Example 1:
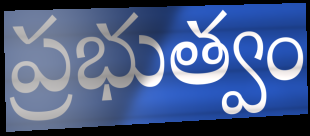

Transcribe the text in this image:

ప్రభుత్వం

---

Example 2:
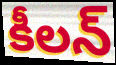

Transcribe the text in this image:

కీలన్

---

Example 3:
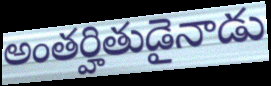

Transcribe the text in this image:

అంతర్హితుడైనాడు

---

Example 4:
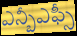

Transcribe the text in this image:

ఎన్బీఎఫ్సీ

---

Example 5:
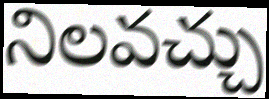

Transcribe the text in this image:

నిలవచ్చు